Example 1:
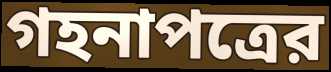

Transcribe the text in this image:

গহনাপত্রের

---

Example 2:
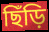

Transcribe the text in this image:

ছিঁড়ি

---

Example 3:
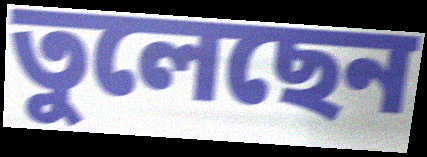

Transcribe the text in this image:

তুলেছেন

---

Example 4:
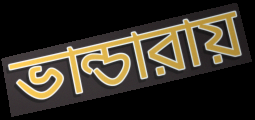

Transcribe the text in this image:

ভান্ডারায়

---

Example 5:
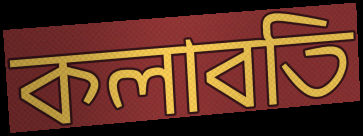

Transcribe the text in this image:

কলাবতি